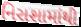
નિરાશામાંથી